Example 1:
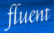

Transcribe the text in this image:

fluent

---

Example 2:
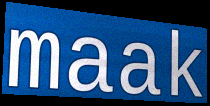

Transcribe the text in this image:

maak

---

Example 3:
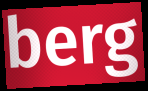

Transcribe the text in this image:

berg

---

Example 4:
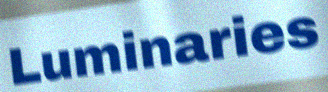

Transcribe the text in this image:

Luminaries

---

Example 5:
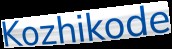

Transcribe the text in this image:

Kozhikode